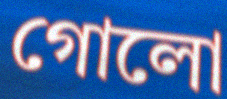
গোলো